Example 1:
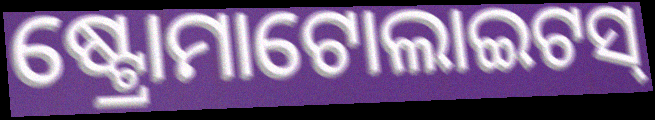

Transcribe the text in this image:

ଷ୍ଟ୍ରୋମାଟୋଲାଇଟସ୍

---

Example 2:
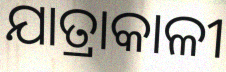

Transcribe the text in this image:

ଯାତ୍ରାକାଳୀ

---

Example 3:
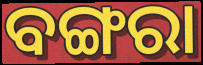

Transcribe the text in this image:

ବଙ୍ଗରା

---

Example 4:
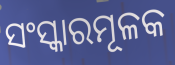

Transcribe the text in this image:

ସଂସ୍କାରମୂଳକ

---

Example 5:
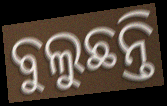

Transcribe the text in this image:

ବୁଲୁଛନ୍ତି